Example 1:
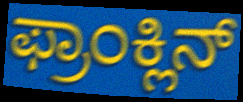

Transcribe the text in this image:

ಫ್ರಾಂಕ್ಲಿನ್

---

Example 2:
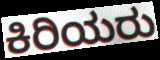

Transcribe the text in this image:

ಕಿರಿಯರು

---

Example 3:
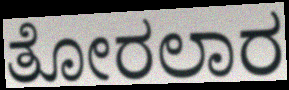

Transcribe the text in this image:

ತೋರಲಾರ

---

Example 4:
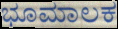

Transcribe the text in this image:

ಭೂಮಾಲಕ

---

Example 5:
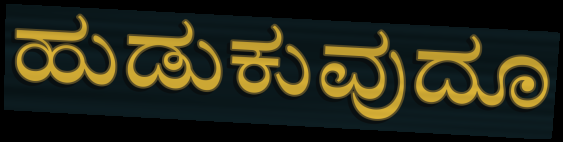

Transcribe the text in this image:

ಹುಡುಕುವುದೂ